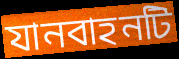
যানবাহনটি